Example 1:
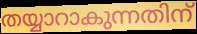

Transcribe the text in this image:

തയ്യാറാകുന്നതിന്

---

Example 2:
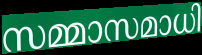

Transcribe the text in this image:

സമ്മാസമാധി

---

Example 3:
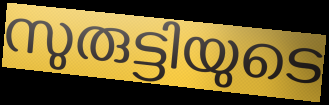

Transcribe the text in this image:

സുരുട്ടിയുടെ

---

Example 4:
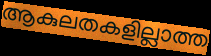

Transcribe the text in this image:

ആകുലതകളില്ലാത്ത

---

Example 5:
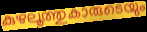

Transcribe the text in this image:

കുഴലൂത്തുകാരുടെയും